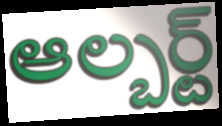
ఆల్బర్ట్